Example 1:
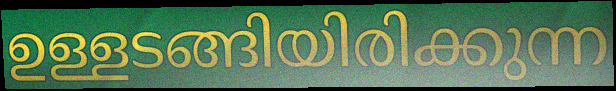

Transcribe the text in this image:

ഉള്ളടങ്ങിയിരിക്കുന്ന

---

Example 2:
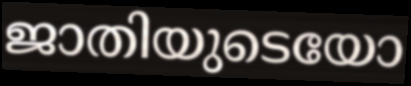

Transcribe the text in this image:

ജാതിയുടെയോ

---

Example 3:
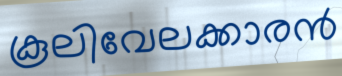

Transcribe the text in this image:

കൂലിവേലക്കാരൻ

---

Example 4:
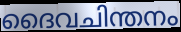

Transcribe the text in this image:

ദൈവചിന്തനം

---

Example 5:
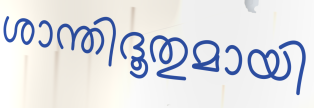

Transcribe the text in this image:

ശാന്തിദൂതുമായി